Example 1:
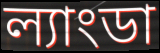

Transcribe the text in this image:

ল্যাংডা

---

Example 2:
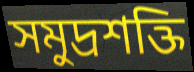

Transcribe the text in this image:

সমুদ্রশক্তি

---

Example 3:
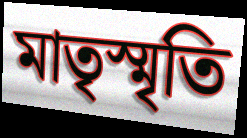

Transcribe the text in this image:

মাতৃস্মৃতি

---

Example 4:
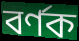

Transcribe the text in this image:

বর্ণক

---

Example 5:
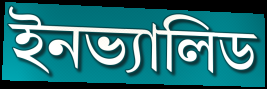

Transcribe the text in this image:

ইনভ্যালিড